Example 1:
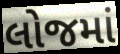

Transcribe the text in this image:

લોજમાં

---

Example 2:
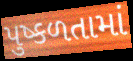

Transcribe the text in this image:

પુષ્કળતામાં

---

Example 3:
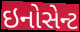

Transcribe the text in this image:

ઇનોસેન્ટ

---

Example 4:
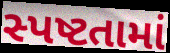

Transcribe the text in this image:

સ્પષ્ટતામાં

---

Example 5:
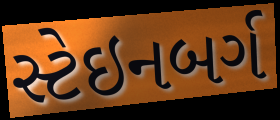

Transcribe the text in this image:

સ્ટેઇનબર્ગ